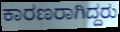
ಕಾರಣರಾಗಿದ್ದರು